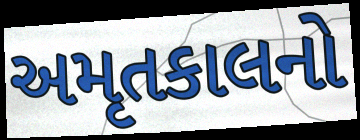
અમૃતકાલનો